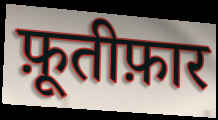
फ़ूतीफ़ार